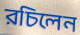
রচিলেন